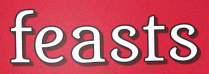
feasts